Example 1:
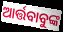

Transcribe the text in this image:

ଆର୍ତ୍ତବାବୁଙ୍କ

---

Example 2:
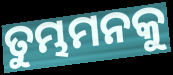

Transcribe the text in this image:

ତୁମ୍ଭମନକୁ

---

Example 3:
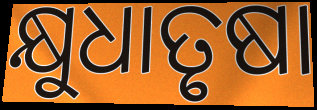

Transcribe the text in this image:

କ୍ଷୁଧାତୃଷା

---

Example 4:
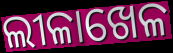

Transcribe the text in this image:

ଲୀଳାଖେଳ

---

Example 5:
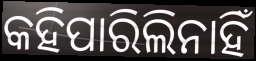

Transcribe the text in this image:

କହିପାରିଲିନାହିଁ